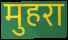
मुहरा